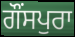
ਗੌਂਸਪੁਰਾ